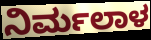
ನಿರ್ಮಲಾಳ